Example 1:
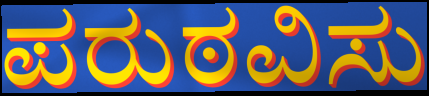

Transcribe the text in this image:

ಪರುಠವಿಸು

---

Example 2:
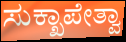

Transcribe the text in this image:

ಸುಕ್ಖಾಪೇತ್ವಾ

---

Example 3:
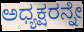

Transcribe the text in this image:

ಅಧ್ಯಕ್ಷರನ್ನೇ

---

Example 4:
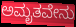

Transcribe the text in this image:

ಅಮೃತವೇನು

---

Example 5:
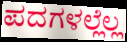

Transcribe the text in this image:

ಪದಗಳಲ್ಲೆಲ್ಲ